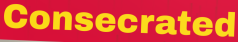
Consecrated